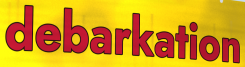
debarkation